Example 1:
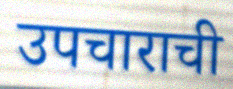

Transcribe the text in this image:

उपचाराची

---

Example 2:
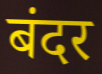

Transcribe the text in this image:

बंदर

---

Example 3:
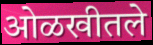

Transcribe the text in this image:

ओळखीतले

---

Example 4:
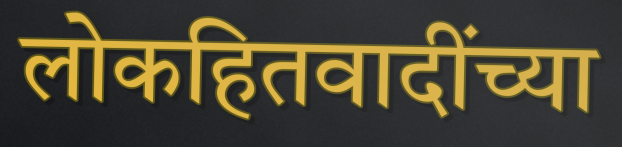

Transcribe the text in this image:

लोकहितवादींच्या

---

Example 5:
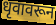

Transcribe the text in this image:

धृवावरून